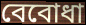
বেবোধা